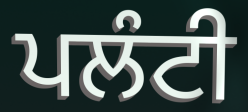
ਪਲੰਟੀ